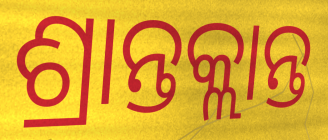
ଶ୍ରାନ୍ତକ୍ଲାନ୍ତ